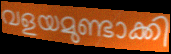
വളയമുണ്ടാക്കി